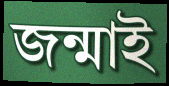
জন্মাই